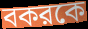
বকরকে